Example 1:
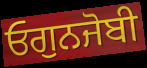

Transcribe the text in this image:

ਓਗੁਨਜੋਬੀ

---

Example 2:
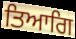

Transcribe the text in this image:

ਤਿਆਗਿ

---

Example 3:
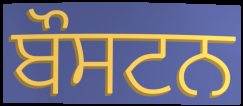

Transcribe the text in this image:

ਬੌਸਟਨ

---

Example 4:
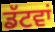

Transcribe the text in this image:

ਡੱਟਵਾਂ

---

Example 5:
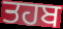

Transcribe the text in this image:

ਤਹਬ